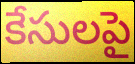
కేసులపై